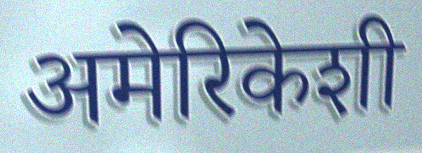
अमेरिकेशी